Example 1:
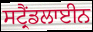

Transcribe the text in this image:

ਸਟ੍ਰੈਂਡਲਾਈਨ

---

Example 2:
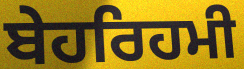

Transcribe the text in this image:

ਬੇਹਰਿਹਮੀ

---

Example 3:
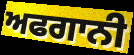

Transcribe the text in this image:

ਅਫਗਾਨੀ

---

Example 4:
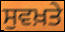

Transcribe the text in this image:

ਸੁਵਖ਼ਤੇ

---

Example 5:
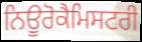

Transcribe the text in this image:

ਨਿਊਰੋਕੈਮਿਸਟਰੀ